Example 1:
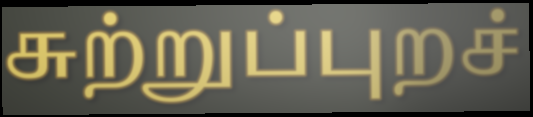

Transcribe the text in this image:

சுற்றுப்புறச்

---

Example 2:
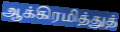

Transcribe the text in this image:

ஆக்கிரமித்துத்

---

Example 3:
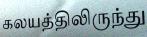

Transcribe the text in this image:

கலயத்திலிருந்து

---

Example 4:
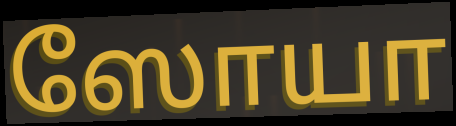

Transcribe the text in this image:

ஸோயா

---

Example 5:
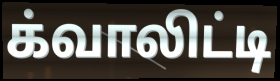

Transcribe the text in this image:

க்வாலிட்டி